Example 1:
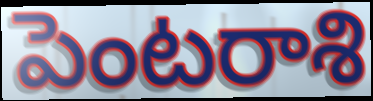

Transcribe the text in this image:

పెంటరాశి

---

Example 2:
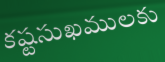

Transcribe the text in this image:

కష్టసుఖములకు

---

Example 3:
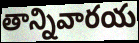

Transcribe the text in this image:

తాన్నివారయ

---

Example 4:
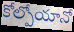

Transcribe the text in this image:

కోల్పోయానో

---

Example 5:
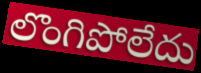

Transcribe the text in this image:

లొంగిపోలేదు